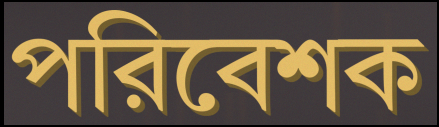
পরিবেশক